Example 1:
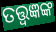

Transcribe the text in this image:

ତତ୍ତ୍ଵଜ୍ଞଙ୍କ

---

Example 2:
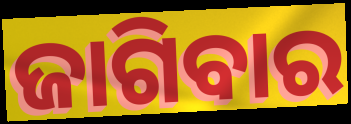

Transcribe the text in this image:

ଜାଗିବାର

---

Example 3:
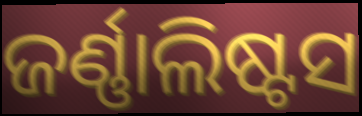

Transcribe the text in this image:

ଜର୍ଣ୍ଣାଲିଷ୍ଟସ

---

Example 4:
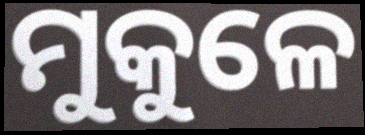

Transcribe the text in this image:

ମୁକୁଳେ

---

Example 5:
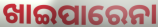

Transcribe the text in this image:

ଖାଇପାରେନା